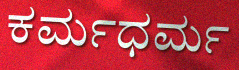
ಕರ್ಮಧರ್ಮ